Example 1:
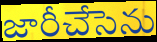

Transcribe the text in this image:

జారీచేసెను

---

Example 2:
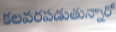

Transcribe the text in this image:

కలవరపడుతున్నారో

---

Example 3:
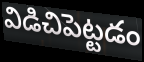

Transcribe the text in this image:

విడిచిపెట్టడం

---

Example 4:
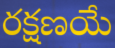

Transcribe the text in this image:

రక్షణయే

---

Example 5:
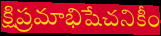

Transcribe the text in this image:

క్షిప్రమాభిషేచనికీం